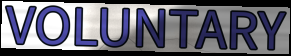
VOLUNTARY